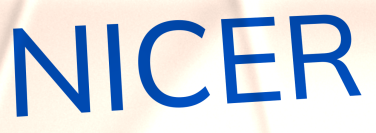
NICER